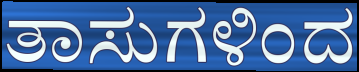
ತಾಸುಗಳಿಂದ